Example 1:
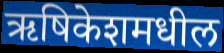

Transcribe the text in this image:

ऋषिकेशमधील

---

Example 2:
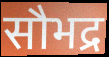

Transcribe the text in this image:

सौभद्र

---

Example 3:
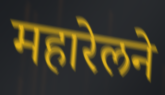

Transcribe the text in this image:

महारेलने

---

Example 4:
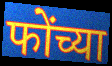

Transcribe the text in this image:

फोंच्या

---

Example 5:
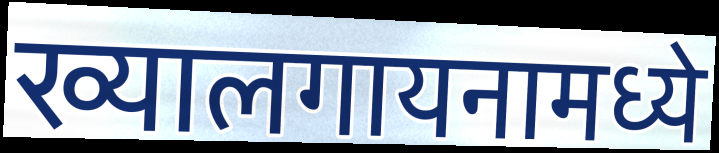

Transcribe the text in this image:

ख्यालगायनामध्ये